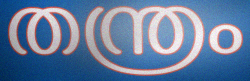
തന്ത്രം